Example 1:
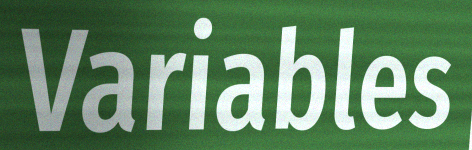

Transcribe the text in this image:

Variables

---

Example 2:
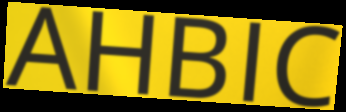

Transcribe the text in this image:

AHBIC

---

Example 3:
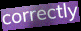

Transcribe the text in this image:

correctly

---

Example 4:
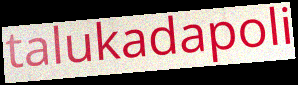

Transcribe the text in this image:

talukadapoli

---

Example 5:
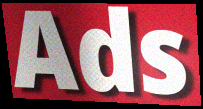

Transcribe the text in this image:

Ads